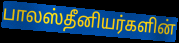
பாலஸ்தீனியர்களின்